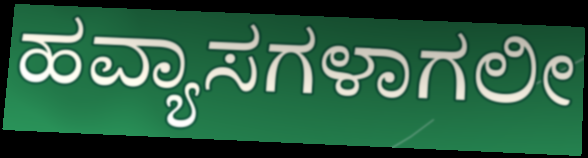
ಹವ್ಯಾಸಗಳಾಗಲೀ